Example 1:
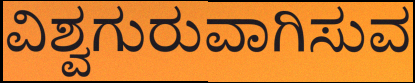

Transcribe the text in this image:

ವಿಶ್ವಗುರುವಾಗಿಸುವ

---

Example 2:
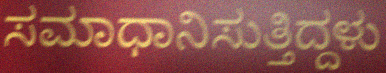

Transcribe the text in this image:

ಸಮಾಧಾನಿಸುತ್ತಿದ್ದಳು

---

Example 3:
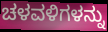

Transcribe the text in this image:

ಚಳವಳಿಗಳನ್ನು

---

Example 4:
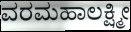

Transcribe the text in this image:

ವರಮಹಾಲಕ್ಷ್ಮೀ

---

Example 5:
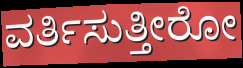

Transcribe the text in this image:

ವರ್ತಿಸುತ್ತೀರೋ